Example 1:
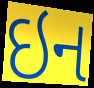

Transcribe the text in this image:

ઇન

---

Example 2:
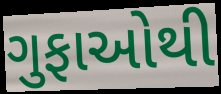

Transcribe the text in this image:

ગુફાઓથી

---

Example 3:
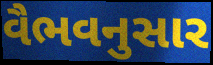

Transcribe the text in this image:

વૈભવનુસાર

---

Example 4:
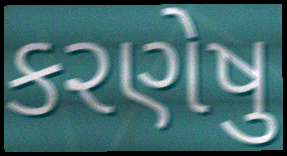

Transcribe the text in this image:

કરણેષુ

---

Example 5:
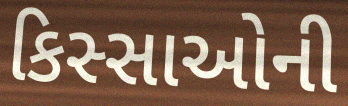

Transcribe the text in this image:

કિસ્સાઓની